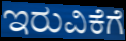
ಇರುವಿಕೆಗೆ